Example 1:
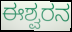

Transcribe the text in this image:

ಈಶ್ವರನ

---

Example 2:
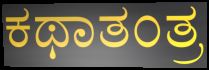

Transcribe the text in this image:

ಕಥಾತಂತ್ರ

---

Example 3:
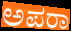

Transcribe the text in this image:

ಅಪರಾ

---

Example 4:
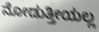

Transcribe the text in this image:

ನೋಡುತ್ತೀಯಲ್ಲ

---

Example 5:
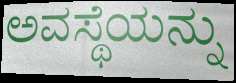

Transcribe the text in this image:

ಅವಸ್ಥೆಯನ್ನು